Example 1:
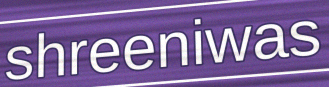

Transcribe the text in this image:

shreeniwas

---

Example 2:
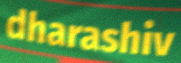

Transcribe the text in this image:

dharashiv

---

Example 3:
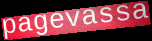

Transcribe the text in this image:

pagevassa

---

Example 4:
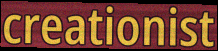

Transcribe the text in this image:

creationist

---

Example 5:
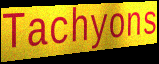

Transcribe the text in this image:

Tachyons